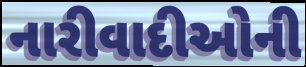
નારીવાદીઓની